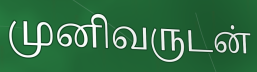
முனிவருடன்